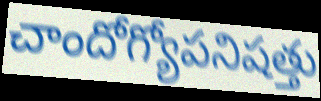
చాందోగ్యోపనిషత్తు